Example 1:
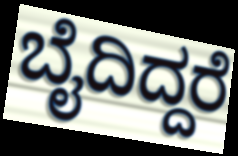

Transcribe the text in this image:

ಬೈದಿದ್ದರೆ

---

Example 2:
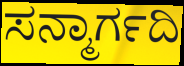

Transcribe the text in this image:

ಸನ್ಮಾರ್ಗದಿ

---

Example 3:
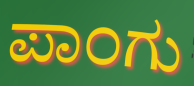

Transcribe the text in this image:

ಪಾಂಗು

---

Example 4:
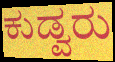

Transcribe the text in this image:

ಕುಡ್ವರು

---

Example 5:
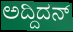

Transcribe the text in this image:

ಅದ್ದಿದನ್